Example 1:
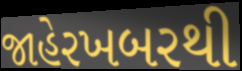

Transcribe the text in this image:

જાહેરખબરથી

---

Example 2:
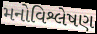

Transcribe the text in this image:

મનોવિશ્લેષણ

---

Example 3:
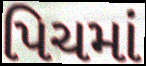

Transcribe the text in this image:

પિચમાં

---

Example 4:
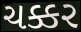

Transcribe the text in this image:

ચક્કર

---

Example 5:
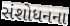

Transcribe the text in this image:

સંશોધનના